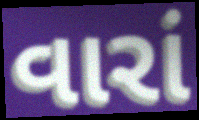
વારાં